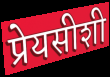
प्रेयसीशी